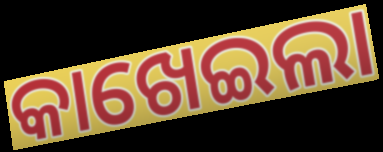
କାଖେଇଲା